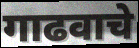
गाढवाचे